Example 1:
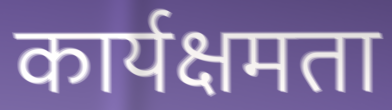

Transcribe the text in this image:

कार्यक्षमता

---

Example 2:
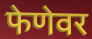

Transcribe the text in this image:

फेणेवर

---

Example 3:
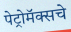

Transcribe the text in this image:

पेट्रोमॅक्सचे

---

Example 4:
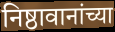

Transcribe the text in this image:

निष्ठावानांच्या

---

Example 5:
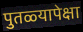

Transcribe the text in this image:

पुतळ्यापेक्षा